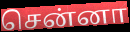
சென்னா